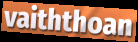
vaiththoan